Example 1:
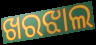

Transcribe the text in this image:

ଖରଝାଲ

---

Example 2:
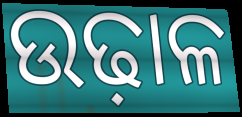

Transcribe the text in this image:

ଉଢ଼ାଳ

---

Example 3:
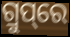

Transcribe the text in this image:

ଗ୍ରୁପ୍‌ରେ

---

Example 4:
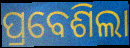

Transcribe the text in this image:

ପ୍ରବେଶିଲା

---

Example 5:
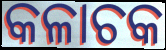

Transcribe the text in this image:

କଳାଚକ